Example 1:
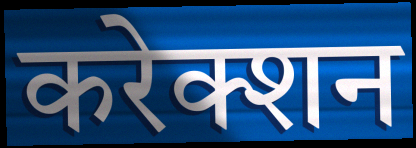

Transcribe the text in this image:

करेक्शन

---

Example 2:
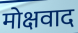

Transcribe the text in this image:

मोक्षवाद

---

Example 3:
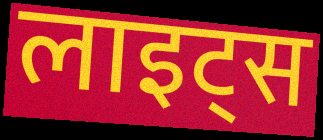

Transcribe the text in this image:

लाइट्स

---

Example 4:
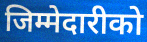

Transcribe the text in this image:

जिम्मेदारीको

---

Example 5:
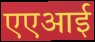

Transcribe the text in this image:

एएआई